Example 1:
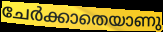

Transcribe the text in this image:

ചേർക്കാതെയാണു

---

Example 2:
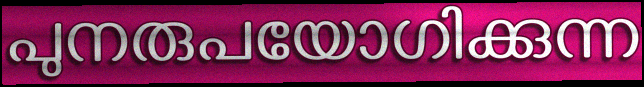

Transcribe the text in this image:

പുനരുപയോഗിക്കുന്ന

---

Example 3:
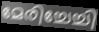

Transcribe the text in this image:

മേരിച്ചേച്ചി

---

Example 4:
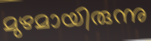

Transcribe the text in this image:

മുഴമായിരുന്നു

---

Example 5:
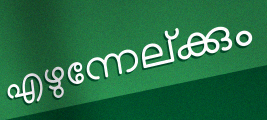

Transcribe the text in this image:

എഴുന്നേല്ക്കും